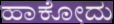
ಹಾಕೋದು